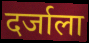
दर्जाला